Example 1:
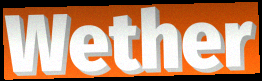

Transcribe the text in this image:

Wether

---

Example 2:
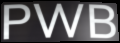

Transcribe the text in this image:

PWB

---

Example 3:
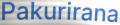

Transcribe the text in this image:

Pakurirana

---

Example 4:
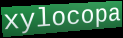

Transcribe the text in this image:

xylocopa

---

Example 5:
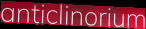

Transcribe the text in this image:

anticlinorium